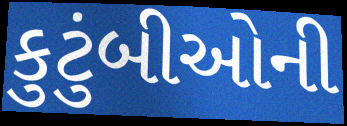
કુટુંબીઓની